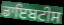
ਡਾਇਬਟੀਸ